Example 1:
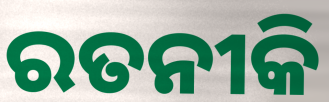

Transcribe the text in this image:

ରତନୀକି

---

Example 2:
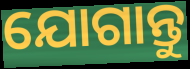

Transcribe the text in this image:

ଯୋଗାନ୍ତୁ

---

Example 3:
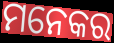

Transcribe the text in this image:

ମନେକର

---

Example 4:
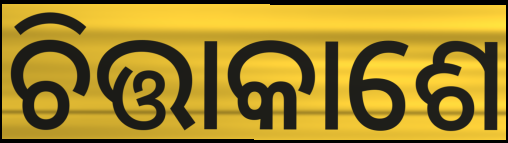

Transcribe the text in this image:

ଚିତ୍ତାକାଶେ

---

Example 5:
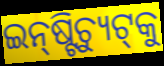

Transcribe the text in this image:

ଇନ୍‌ଷ୍ଟିଚ୍ୟୁଟ୍‌କୁ